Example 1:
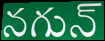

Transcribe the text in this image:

నగున్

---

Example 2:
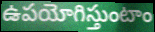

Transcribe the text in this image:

ఉపయోగిస్తుంటాం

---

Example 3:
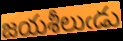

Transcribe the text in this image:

జయశీలుఁడు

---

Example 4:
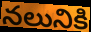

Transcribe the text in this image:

నలునికి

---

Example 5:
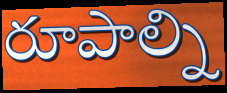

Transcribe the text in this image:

రూపాల్ని